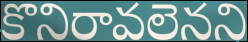
కొనిరావలెనని